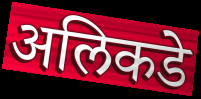
अलिकडे